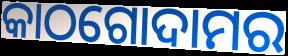
କାଠଗୋଦାମର